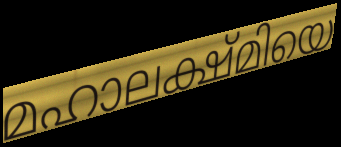
മഹാലക്ഷ്മിയെ